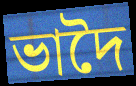
ভাদৈ